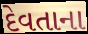
દેવતાના